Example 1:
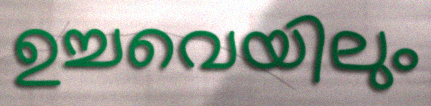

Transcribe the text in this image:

ഉച്ചവെയിലും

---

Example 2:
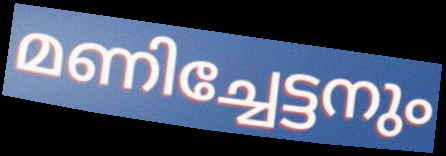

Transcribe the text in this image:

മണിച്ചേട്ടനും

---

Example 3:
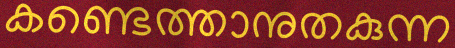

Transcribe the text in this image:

കണ്ടെത്താനുതകുന്ന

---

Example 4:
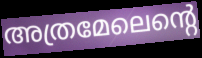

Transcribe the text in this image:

അത്രമേലെന്റെ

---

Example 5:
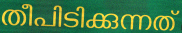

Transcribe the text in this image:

തീപിടിക്കുന്നത്